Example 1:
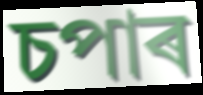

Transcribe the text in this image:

চপাৰ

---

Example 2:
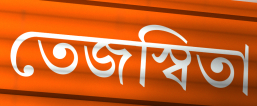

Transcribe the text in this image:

তেজস্বিতা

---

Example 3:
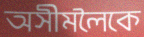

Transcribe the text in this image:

অসীমলৈকে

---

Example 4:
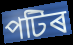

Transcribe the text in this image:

পটিৰ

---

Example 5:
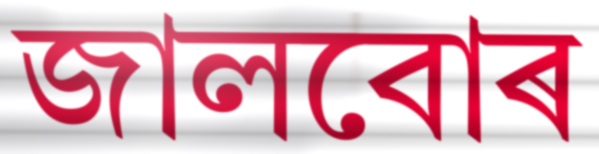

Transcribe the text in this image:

জালবোৰ